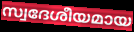
സ്വദേശീയമായ